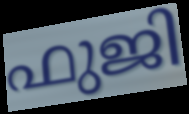
ഫുജി